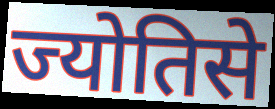
ज्योतिसे